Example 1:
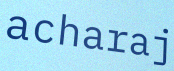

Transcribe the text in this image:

acharaj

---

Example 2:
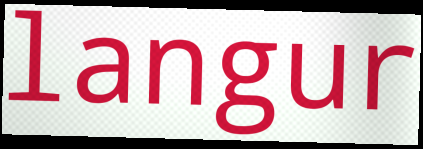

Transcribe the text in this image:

langur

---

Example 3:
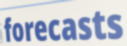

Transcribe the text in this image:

forecasts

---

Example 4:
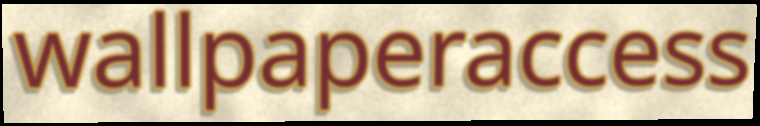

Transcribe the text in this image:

wallpaperaccess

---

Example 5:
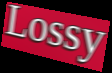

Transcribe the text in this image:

Lossy